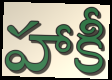
హాకీ